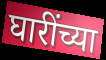
घारींच्या